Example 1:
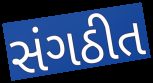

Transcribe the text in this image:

સંગઠીત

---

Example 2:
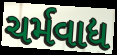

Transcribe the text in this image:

ચર્મવાદ્ય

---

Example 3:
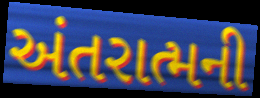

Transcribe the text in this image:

અંતરાત્મની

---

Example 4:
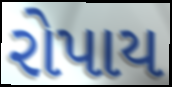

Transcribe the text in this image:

રોપાય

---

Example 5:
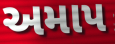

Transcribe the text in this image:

અમાપ